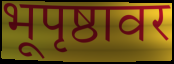
भूपृष्ठावर